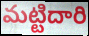
మట్టిదారి